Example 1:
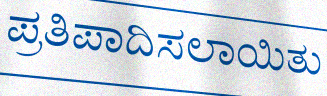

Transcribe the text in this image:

ಪ್ರತಿಪಾದಿಸಲಾಯಿತು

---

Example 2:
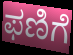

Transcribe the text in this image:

ಫಣಿಗೆ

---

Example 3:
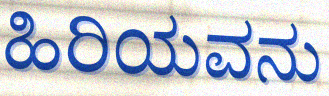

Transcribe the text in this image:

ಹಿರಿಯವನು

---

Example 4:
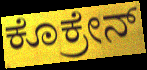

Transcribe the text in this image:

ಕೊಕ್ರೇನ್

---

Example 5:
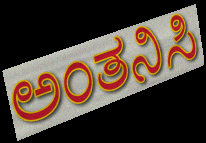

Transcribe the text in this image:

ಅಂತನಿಸಿ